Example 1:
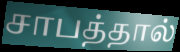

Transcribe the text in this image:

சாபத்தால்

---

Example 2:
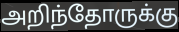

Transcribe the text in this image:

அறிந்தோருக்கு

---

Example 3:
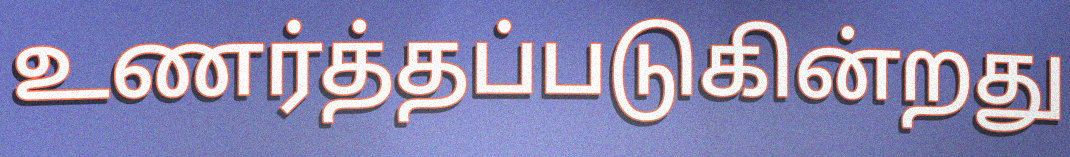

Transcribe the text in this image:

உணர்த்தப்படுகின்றது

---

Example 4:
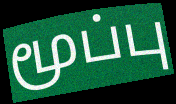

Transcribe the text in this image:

மூப்பு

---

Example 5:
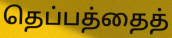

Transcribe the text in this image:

தெப்பத்தைத்